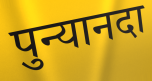
पुन्यानदा